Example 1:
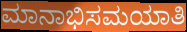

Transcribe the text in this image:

ಮಾನಾಭಿಸಮಯಾತಿ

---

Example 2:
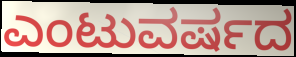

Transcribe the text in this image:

ಎಂಟುವರ್ಷದ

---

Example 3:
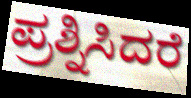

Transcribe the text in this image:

ಪ್ರಶ್ನಿಸಿದರೆ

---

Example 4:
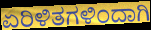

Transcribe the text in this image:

ಏರಿಳಿತಗಳಿಂದಾಗಿ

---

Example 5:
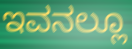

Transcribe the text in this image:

ಇವನಲ್ಲೂ